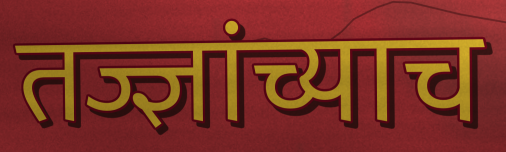
तज्ज्ञांच्याच